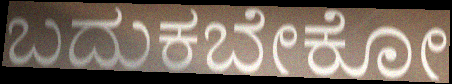
ಬದುಕಬೇಕೋ